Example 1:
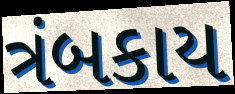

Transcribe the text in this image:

ત્રંબકાય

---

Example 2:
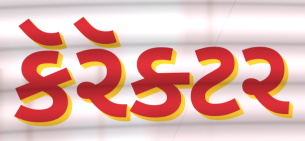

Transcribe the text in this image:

કૅરૅક્ટર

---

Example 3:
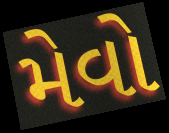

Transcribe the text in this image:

મેવો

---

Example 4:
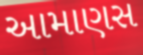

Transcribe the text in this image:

આમાણસ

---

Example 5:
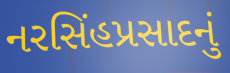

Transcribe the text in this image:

નરસિંહપ્રસાદનું